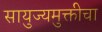
सायुज्यमुक्तीचा